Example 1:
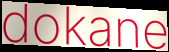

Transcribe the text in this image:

dokane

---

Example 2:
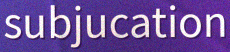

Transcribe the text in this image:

subjucation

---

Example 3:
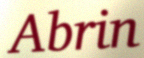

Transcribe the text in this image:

Abrin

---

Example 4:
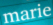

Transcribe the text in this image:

marie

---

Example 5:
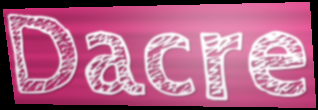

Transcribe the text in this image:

Dacre